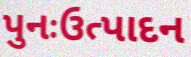
પુનઃઉત્પાદન